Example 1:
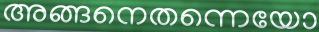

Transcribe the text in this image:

അങ്ങനെതന്നെയോ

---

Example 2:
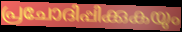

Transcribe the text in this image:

പ്രചോദിപ്പിക്കുകയും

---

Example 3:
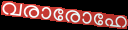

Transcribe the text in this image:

വരാരോഹേ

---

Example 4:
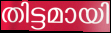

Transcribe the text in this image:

തിട്ടമായി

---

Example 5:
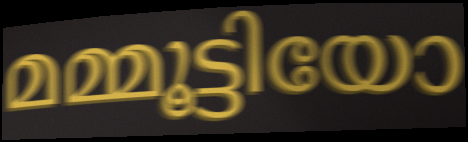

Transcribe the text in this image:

മമ്മൂട്ടിയോ